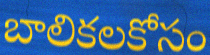
బాలికలకోసం